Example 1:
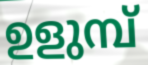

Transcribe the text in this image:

ഉളുമ്പ്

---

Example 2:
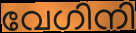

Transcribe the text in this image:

വേഗിനി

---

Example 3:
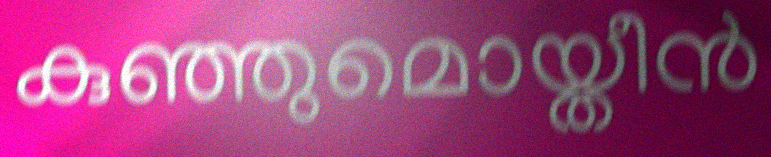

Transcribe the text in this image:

കുഞ്ഞുമൊയ്തീൻ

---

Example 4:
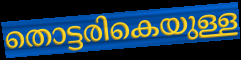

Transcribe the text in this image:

തൊട്ടരികെയുള്ള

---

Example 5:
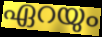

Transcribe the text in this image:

ഏറയും